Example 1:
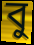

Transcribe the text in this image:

বু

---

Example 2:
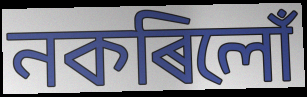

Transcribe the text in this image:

নকৰিলোঁ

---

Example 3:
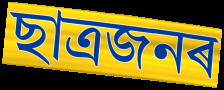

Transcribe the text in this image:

ছাত্ৰজনৰ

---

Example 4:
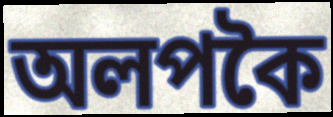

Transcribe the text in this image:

অলপকৈ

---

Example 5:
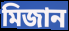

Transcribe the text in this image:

মিজান